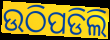
ଉଠିପଡିଲି